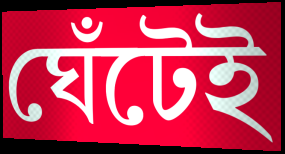
ঘেঁটেই